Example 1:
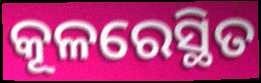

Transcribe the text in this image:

କୂଳରେସ୍ଥିତ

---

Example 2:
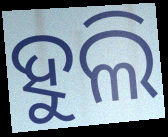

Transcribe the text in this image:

ହୁଲି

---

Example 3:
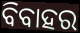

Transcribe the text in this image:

ବିବାହର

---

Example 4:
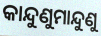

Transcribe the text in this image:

କାନ୍ଦୁଣୁମାନ୍ଦୁଣୁ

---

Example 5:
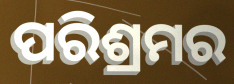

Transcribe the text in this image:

ପରିଶ୍ରମର